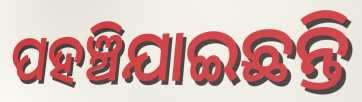
ପହଞ୍ଚିଯାଇଛନ୍ତି